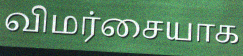
விமர்சையாக